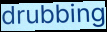
drubbing